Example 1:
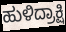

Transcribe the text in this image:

ಹುಳಿದ್ರಾಕ್ಷಿ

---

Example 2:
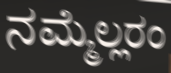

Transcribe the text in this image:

ನಮ್ಮೆಲ್ಲರಂ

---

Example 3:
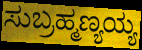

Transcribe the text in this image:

ಸುಬ್ರಹ್ಮಣ್ಯಯ್ಯ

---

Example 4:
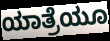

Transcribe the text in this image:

ಯಾತ್ರೆಯೂ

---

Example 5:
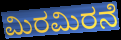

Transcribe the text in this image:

ಮಿರಮಿರನೆ